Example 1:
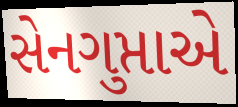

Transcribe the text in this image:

સેનગુપ્તાએ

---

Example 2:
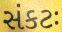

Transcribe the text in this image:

સંકટઃ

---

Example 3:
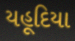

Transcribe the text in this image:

યહૂદિયા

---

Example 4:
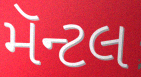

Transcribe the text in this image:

મૅન્ટલ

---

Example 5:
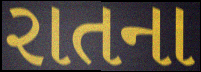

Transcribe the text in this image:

રાતના